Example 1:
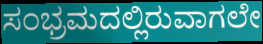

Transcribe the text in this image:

ಸಂಭ್ರಮದಲ್ಲಿರುವಾಗಲೇ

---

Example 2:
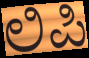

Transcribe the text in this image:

ಲಿಪಿ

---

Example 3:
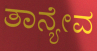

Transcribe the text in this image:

ತಾನ್ಯೇವ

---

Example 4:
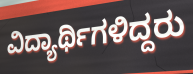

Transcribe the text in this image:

ವಿದ್ಯಾರ್ಥಿಗಳಿದ್ದರು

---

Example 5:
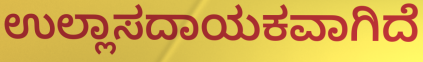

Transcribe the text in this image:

ಉಲ್ಲಾಸದಾಯಕವಾಗಿದೆ